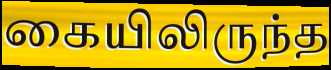
கையிலிருந்த